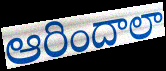
ఆరిందాలా